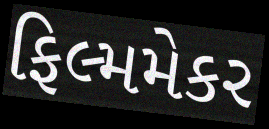
ફિલ્મમેકર